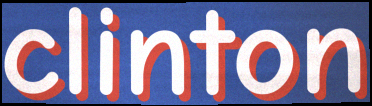
clinton